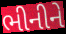
ભીનીને